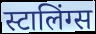
स्टालिंग्स